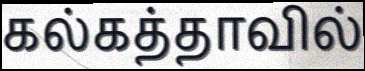
கல்கத்தாவில்